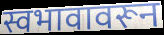
स्वभावावरून